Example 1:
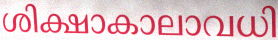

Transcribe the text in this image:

ശിക്ഷാകാലാവധി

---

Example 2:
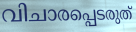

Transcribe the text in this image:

വിചാരപ്പെടരുത്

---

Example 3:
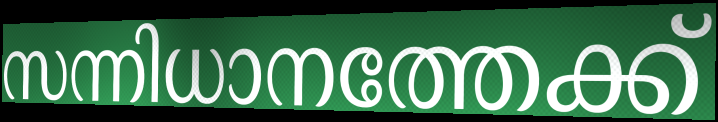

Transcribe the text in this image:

സന്നിധാനത്തേക്ക്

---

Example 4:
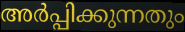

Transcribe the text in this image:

അർപ്പിക്കുന്നതും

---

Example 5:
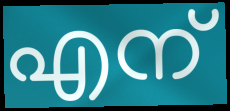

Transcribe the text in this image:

എന്